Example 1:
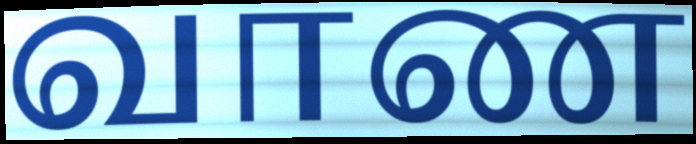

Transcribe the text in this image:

வாண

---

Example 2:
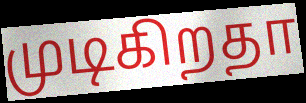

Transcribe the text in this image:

முடிகிறதா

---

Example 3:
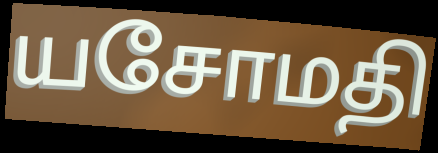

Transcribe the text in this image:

யசோமதி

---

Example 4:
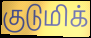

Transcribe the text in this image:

குடுமிக்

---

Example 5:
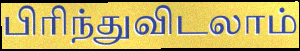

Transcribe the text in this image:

பிரிந்துவிடலாம்